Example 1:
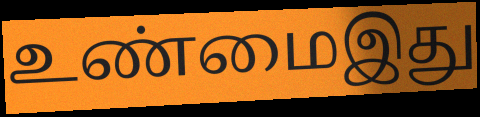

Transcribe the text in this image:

உண்மைஇது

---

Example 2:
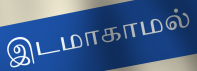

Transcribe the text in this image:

இடமாகாமல்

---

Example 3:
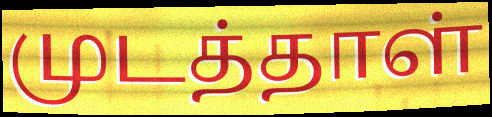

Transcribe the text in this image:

முடத்தாள்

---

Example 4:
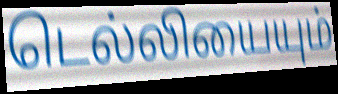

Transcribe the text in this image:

டெல்லியையும்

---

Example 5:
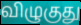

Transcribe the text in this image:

விழுகுது